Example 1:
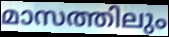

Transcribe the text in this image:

മാസത്തിലും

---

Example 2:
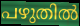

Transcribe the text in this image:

പഴുതിൽ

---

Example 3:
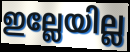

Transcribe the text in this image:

ഇല്ലേയില്ല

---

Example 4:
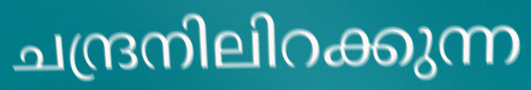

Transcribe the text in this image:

ചന്ദ്രനിലിറക്കുന്ന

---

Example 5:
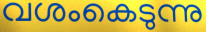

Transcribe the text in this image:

വശംകെടുന്നു